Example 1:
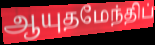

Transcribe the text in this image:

ஆயுதமேந்திப்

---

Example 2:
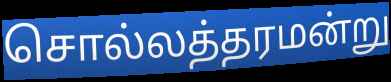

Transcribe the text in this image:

சொல்லத்தரமன்று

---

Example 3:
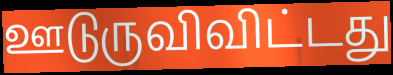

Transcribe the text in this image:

ஊடுருவிவிட்டது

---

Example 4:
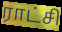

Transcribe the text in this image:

ராட்சி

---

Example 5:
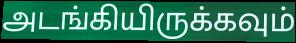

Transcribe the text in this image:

அடங்கியிருக்கவும்